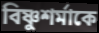
বিষ্ণুশর্মাকে